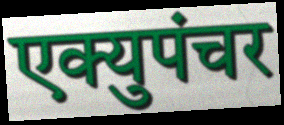
एक्युपंचर